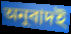
অনুবাদই